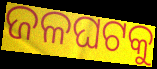
ଜଳଘଟକୁ